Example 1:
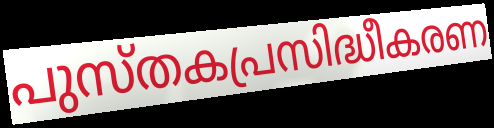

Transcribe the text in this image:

പുസ്തകപ്രസിദ്ധീകരണ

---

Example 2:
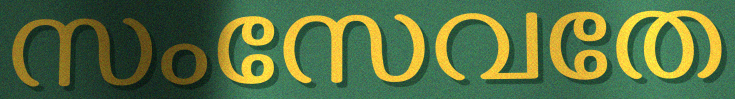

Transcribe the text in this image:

സംസേവതേ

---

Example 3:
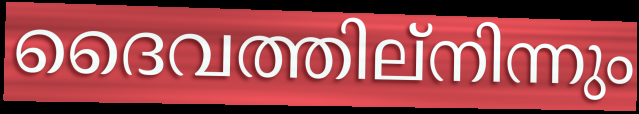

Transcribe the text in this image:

ദൈവത്തില്നിന്നും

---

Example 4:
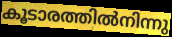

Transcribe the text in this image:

കൂടാരത്തിൽനിന്നു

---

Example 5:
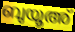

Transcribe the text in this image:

ബുയൂഅ്